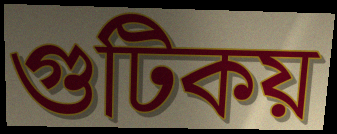
গুটিকয়